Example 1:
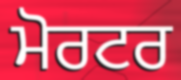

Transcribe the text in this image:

ਮੋਰਟਰ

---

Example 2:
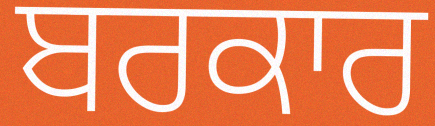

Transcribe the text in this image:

ਬਰਕਾਰ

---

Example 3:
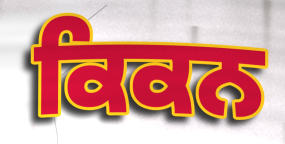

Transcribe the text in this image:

ਕਿਕਨ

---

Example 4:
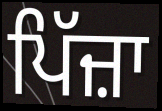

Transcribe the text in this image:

ਪਿੱਜ਼ਾ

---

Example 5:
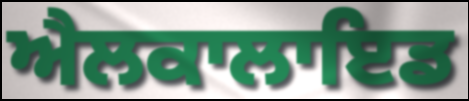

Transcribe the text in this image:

ਐਲਕਾਲਾਇਡ